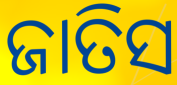
ଜାତିସ